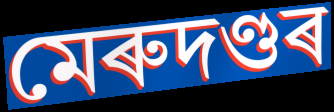
মেৰুদণ্ডৰ